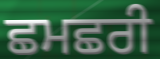
ਛਮਛਰੀ